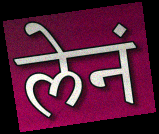
लेनं